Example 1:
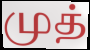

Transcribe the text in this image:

முத்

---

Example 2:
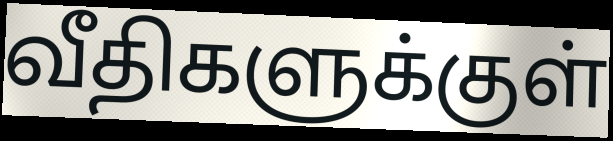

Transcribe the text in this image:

வீதிகளுக்குள்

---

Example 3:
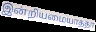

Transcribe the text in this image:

இன்றியமையாததா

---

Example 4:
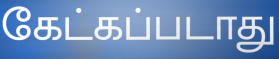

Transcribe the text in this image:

கேட்கப்படாது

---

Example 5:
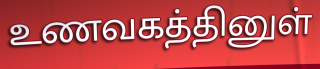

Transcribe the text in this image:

உணவகத்தினுள்